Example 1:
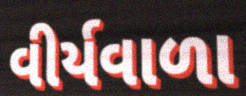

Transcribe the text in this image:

વીર્યવાળા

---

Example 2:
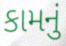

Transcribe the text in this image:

કામનું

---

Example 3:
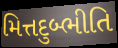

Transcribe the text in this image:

મિત્તદુબ્ભીતિ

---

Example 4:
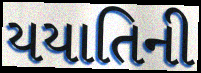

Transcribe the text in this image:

યયાતિની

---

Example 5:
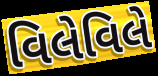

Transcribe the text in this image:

વિલેવિલે